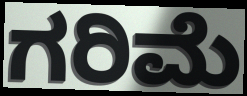
ಗರಿಮೆ